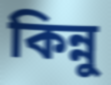
কিন্নু